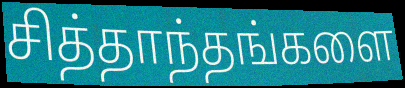
சித்தாந்தங்களை